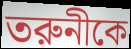
তরুনীকে